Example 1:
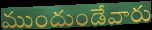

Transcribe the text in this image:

ముందుండేవారు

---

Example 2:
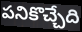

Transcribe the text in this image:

పనికొచ్చేది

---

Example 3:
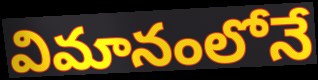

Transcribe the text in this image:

విమానంలోనే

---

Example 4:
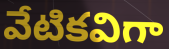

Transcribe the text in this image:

వేటికవిగా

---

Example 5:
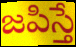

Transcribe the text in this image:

జపిస్తే